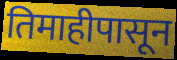
तिमाहीपासून